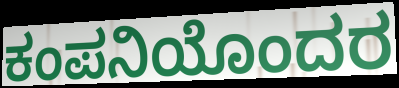
ಕಂಪನಿಯೊಂದರ